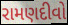
રામણદીવો